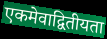
एकमेवाद्वितीयता